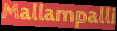
Mallampalli